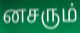
னசரும்